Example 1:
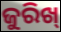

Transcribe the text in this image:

ଜୁରିଖ୍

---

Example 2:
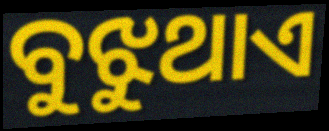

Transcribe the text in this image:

ବୁଝୁଥାଏ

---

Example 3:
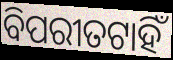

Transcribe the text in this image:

ବିପରୀତଟାହିଁ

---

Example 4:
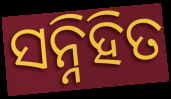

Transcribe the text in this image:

ସନ୍ନିହିତ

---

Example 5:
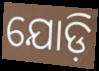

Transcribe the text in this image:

ଯୋଡ଼ି